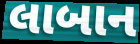
લાબાન